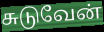
சுடுவேன்